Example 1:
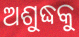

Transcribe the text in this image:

ଅଶୁଦ୍ଧକୁ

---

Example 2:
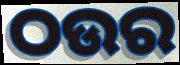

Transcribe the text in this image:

ଠଉର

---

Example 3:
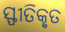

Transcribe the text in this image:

ସ୍ଫୀତିକୃତ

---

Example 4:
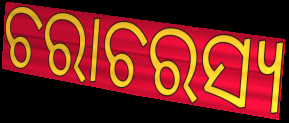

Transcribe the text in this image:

ଚରାଚରସ୍ୟ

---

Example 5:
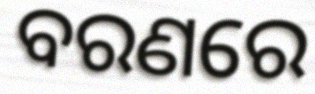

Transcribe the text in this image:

ବରଣରେ